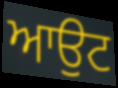
ਆਉਟ